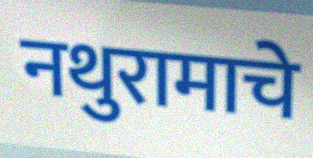
नथुरामाचे